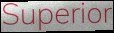
Superior